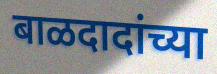
बाळदादांच्या